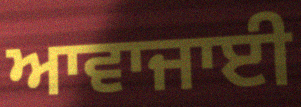
ਆਵਾਜਾਈ